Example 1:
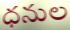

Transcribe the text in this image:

ధనుల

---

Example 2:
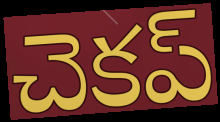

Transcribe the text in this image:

చెకప్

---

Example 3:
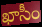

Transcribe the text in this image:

ఖాసీం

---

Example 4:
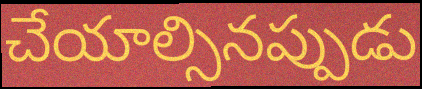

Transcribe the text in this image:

చేయాల్సినప్పుడు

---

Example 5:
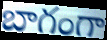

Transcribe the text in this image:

బాగంగా